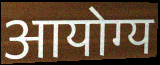
आयोग्य